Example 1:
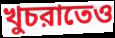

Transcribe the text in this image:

খুচরাতেও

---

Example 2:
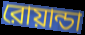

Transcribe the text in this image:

রোয়ান্ডা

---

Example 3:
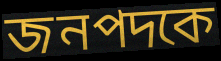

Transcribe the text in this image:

জনপদকে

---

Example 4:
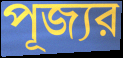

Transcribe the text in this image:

পূজ্যর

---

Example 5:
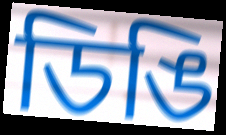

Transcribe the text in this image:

ডিঙি